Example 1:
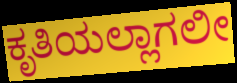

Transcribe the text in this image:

ಕೃತಿಯಲ್ಲಾಗಲೀ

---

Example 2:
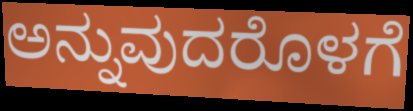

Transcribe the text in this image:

ಅನ್ನುವುದರೊಳಗೆ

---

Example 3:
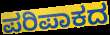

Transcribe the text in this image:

ಪರಿಪಾಕದ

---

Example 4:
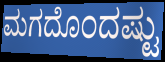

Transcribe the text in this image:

ಮಗದೊಂದಷ್ಟು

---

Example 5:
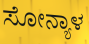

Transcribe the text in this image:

ಸೋನ್ಯಾಳ